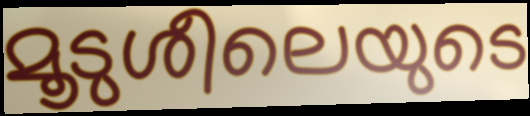
മൂടുശീലെയുടെ